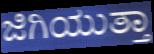
ಜಿಗಿಯುತ್ತಾ